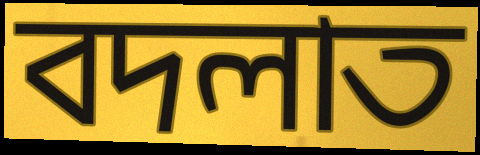
বদলাত